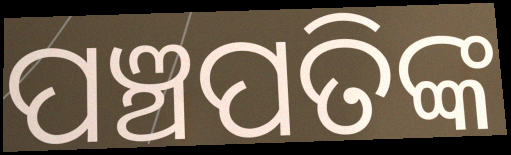
ପଞ୍ଚପତିଙ୍କ